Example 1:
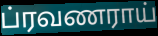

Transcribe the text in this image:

ப்ரவணராய்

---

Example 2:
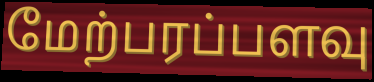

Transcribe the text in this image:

மேற்பரப்பளவு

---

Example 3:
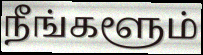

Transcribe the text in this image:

நீங்களூம்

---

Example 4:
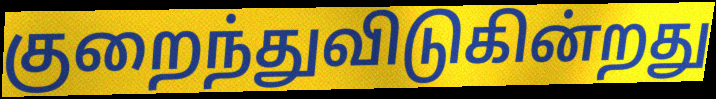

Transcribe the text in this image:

குறைந்துவிடுகின்றது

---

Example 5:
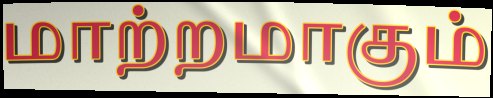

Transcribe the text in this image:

மாற்றமாகும்